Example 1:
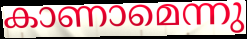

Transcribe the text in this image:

കാണാമെന്നു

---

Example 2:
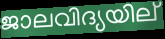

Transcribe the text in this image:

ജാലവിദ്യയില്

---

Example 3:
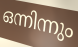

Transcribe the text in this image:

ഒന്നിന്നും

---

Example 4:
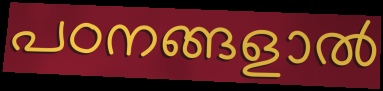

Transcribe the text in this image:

പഠനങ്ങളാൽ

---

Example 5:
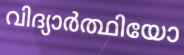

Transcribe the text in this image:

വിദ്യാർത്ഥിയോ